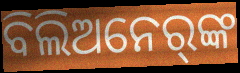
ବିଲିଅନେର୍‌ଙ୍କ